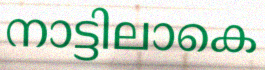
നാട്ടിലാകെ